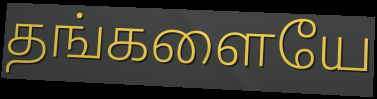
தங்களையே